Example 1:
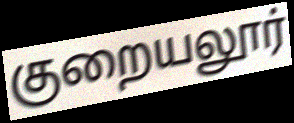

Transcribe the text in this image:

குறையலூர்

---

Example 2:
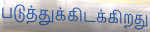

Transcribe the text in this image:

படுத்துக்கிடக்கிறது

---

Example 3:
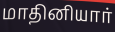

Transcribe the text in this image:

மாதினியார்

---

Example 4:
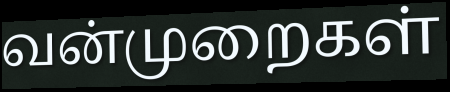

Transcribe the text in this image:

வன்முறைகள்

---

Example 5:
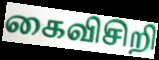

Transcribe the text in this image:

கைவிசிறி